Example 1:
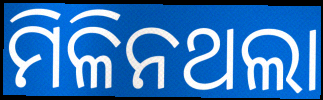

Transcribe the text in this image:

ମିଳିନଥଲା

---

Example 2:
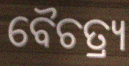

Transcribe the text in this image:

ବୈଚତ୍ର୍ୟ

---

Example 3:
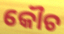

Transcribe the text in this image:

କୌଚ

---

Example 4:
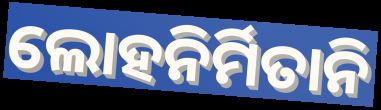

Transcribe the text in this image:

ଲୋହନିର୍ମିତାନି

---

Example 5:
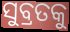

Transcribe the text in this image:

ସୁବ୍ରତକୁ